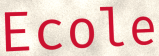
Ecole